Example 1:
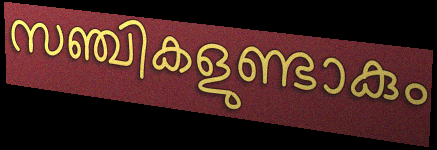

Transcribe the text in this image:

സഞ്ചികളുണ്ടാകും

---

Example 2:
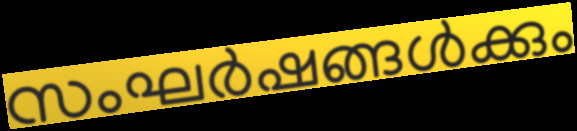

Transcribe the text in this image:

സംഘർഷങ്ങൾക്കും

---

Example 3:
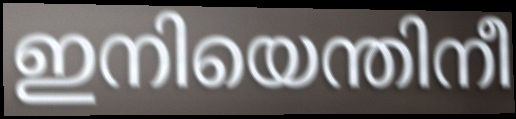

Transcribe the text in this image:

ഇനിയെന്തിനീ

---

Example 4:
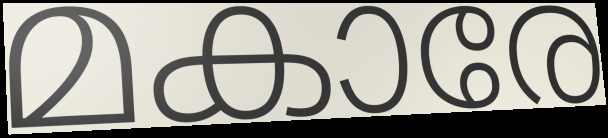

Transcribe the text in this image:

മകാരേ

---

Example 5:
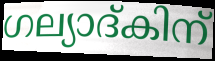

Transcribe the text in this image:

ഗല്യാദ്കിന്